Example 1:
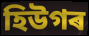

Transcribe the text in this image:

হিউগৰ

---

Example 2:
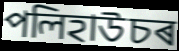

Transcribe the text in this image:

পলিহাউচৰ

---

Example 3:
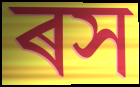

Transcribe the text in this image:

ৰস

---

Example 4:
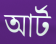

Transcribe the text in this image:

আৰ্ট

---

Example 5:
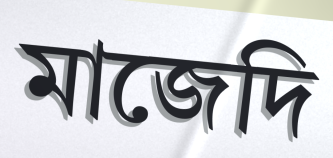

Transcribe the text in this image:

মাজেদি